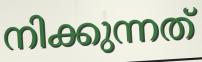
നിക്കുന്നത്